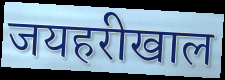
जयहरीखाल